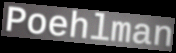
Poehlman